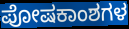
ಪೋಷಕಾಂಶಗಳ